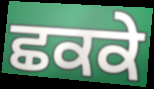
ਛਕਕੇ